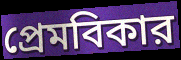
প্রেমবিকার